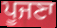
ਪੂਜਣਾ